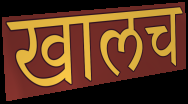
खालच